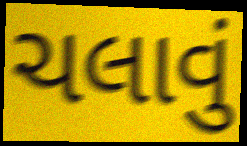
ચલાવું